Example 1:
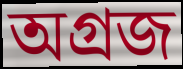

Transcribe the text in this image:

অগ্রজ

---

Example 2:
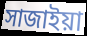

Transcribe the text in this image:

সাজাইয়া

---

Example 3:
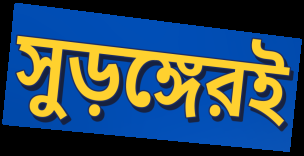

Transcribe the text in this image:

সুড়ঙ্গেরই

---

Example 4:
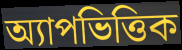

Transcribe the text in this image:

অ্যাপভিত্তিক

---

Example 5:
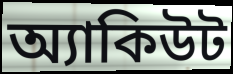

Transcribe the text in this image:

অ্যাকিউট